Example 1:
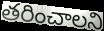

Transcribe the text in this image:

తరించాలని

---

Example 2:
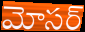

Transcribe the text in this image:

మోసర్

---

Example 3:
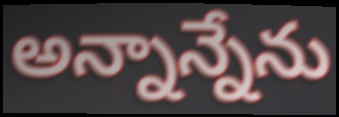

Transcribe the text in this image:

అన్నాన్నేను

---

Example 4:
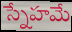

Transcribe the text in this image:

స్నేహమే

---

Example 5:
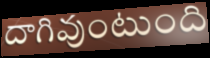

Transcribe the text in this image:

దాగివుంటుంది